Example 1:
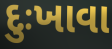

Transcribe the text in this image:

દુઃખાવા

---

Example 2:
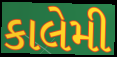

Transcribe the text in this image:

કાલેમી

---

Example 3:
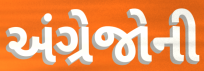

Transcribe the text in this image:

અંગ્રેજોની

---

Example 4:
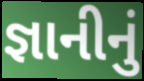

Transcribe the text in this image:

જ્ઞાનીનું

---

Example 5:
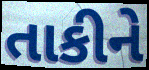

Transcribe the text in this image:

તાકીને